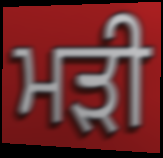
ਮੜੀ